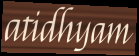
atidhyam